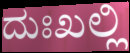
ದುಃಖಲ್ಲಿ